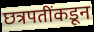
छत्रपतींकडून